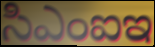
సిఎంఐఇ